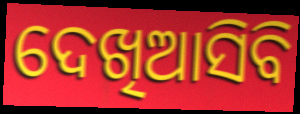
ଦେଖିଆସିବି